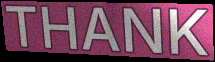
THANK